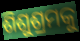
ଶିଶୁଶ୍ରମକୁ